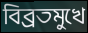
বিব্রতমুখে